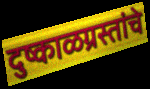
दुष्काळग्रस्तांचे